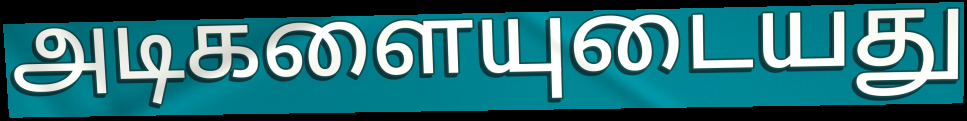
அடிகளையுடையது